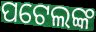
ପଟେଲଙ୍କ